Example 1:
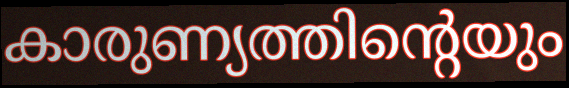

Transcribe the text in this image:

കാരുണ്യത്തിന്റെയും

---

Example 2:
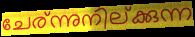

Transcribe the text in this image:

ചേര്ന്നുനില്ക്കുന്ന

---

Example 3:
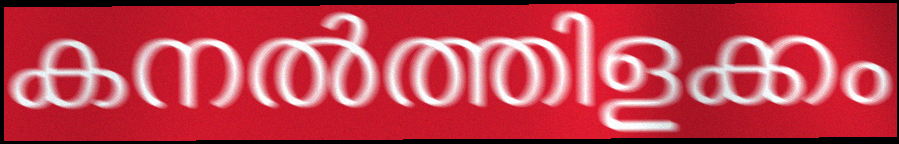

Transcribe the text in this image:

കനൽത്തിളക്കം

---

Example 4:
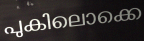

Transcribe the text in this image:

പുകിലൊക്കെ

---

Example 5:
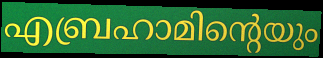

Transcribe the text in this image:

എബ്രഹാമിന്റെയും